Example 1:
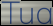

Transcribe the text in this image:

Tua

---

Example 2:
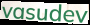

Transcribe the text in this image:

vasudev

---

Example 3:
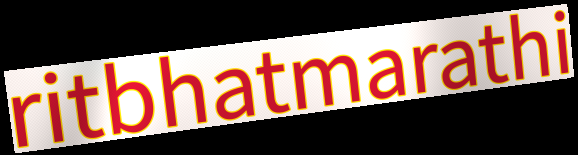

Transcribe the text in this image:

ritbhatmarathi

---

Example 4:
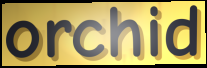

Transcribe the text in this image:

orchid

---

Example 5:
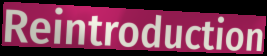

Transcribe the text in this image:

Reintroduction